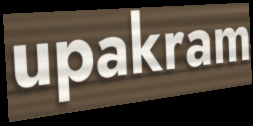
upakram